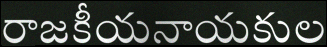
రాజకీయనాయకుల